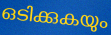
ഒടിക്കുകയും